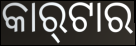
କାର୍‍ଟାର